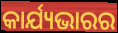
କାର୍ଯ୍ୟଭାରର